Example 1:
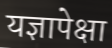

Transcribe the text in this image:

यज्ञापेक्षा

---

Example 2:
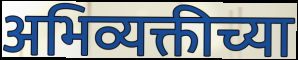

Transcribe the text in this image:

अभिव्यक्तीच्या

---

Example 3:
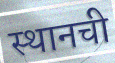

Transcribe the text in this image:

स्थानची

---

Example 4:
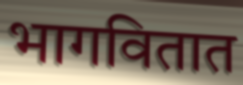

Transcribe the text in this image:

भागवितात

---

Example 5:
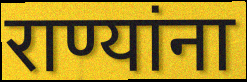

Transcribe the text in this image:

राण्यांना